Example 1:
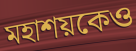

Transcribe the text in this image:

মহাশয়কেও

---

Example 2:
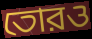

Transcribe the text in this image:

তোরও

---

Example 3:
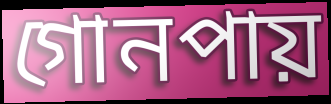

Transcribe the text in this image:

গোনপায়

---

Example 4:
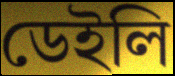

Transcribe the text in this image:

ডেইলি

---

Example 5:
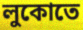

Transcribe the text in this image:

লুকোতে